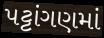
પટ્ટાંગણમાં